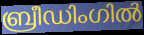
ബ്രീഡിംഗിൽ